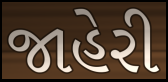
જાહેરી